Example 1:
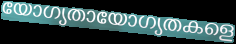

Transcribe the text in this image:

യോഗ്യതായോഗ്യതകളെ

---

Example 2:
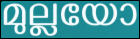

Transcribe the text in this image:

മുല്ലയോ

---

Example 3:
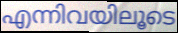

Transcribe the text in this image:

എന്നിവയിലൂടെ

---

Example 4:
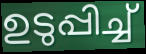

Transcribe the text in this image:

ഉടുപ്പിച്ച്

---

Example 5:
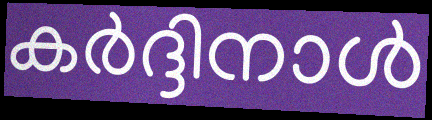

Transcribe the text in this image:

കർദ്ദിനാൾ